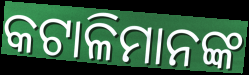
କଟାଳିମାନଙ୍କ